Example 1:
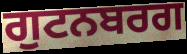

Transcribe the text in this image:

ਗੁਟਨਬਰਗ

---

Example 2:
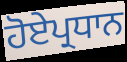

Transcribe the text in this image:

ਹੋਏਪ੍ਰਧਾਨ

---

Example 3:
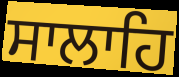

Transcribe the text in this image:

ਸਾਲਾਹਿ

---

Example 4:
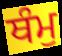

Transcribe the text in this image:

ਥੰਮੁ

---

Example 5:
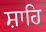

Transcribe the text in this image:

ਸ਼ਾਹਿ